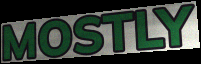
MOSTLY